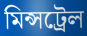
মিন্সট্রেল